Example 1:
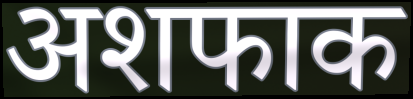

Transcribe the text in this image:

अशफाक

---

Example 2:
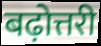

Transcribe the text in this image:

बढ़ोत्तरी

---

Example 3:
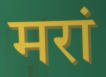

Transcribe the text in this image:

मरां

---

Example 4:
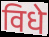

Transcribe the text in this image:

विधे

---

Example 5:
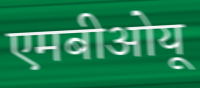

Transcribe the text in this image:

एमबीओयू